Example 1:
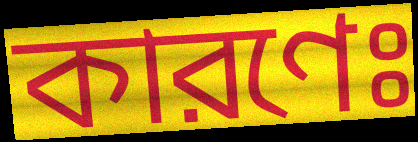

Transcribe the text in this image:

কারণেঃ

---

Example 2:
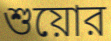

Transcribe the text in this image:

শুয়োর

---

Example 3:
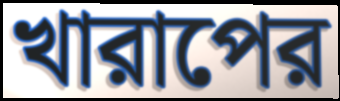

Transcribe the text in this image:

খারাপের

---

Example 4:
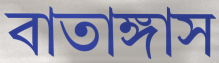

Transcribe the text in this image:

বাতাঙ্গাস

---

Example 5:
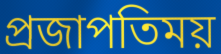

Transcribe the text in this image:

প্রজাপতিময়